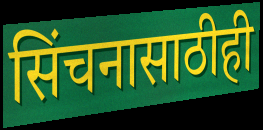
सिंचनासाठीही